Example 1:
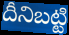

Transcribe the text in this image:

దీనిబట్టి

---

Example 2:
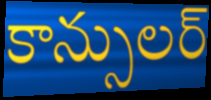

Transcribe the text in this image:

కాన్సులర్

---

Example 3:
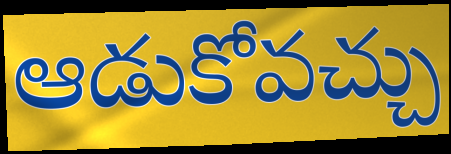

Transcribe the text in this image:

ఆడుకోవచ్చు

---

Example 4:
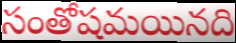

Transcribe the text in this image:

సంతోషమయినది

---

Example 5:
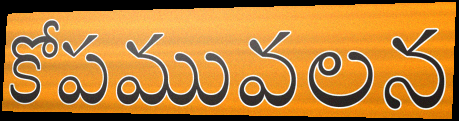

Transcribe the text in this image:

కోపమువలన